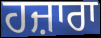
ਹਜ਼ਾਰਾ